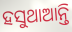
ହସୁଥାଆନ୍ତି